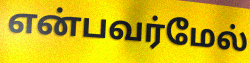
என்பவர்மேல்